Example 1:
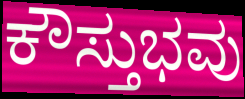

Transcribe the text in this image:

ಕೌಸ್ತುಭವು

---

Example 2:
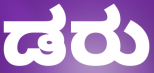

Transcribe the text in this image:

ಡರು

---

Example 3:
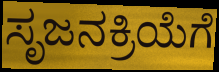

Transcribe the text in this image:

ಸೃಜನಕ್ರಿಯೆಗೆ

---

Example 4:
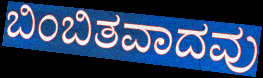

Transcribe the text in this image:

ಬಿಂಬಿತವಾದವು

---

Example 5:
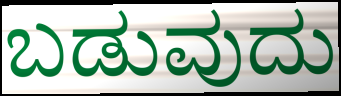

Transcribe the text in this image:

ಬಡುವುದು